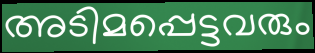
അടിമപ്പെട്ടവരും